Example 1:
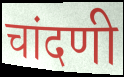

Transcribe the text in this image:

चांदणी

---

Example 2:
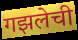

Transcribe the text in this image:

गझलेची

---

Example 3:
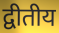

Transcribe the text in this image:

द्वीतीय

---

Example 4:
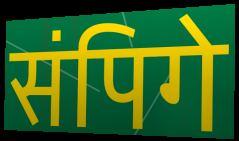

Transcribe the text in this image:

संपिगे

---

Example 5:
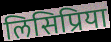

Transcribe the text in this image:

लिसिप्रिया